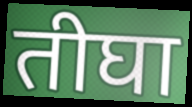
तीघा